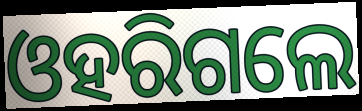
ଓହରିଗଲେ